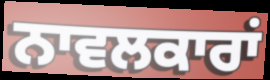
ਨਾਵਲਕਾਰਾਂ